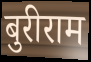
बुरीराम